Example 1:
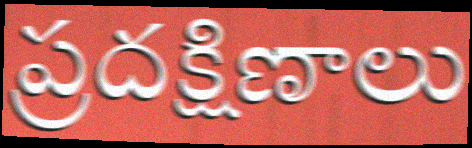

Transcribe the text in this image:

ప్రదక్షిణాలు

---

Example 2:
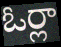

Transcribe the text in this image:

ఓర్లా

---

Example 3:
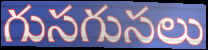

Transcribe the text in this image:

గుసగుసలు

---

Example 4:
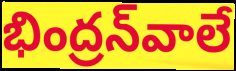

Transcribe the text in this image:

భింద్రన్‌వాలే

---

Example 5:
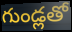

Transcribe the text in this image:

గుండ్లతో